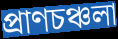
প্রাণচঞ্চলা